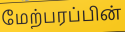
மேற்பரப்பின்